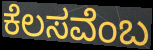
ಕೆಲಸವೆಂಬ